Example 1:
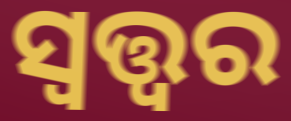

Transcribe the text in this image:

ସ୍ୱତ୍ତ୍ୱର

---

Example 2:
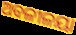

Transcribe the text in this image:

ଅବଳୀଳୟା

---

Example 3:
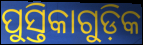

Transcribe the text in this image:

ପୁସ୍ତିକାଗୁଡ଼ିକ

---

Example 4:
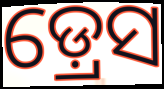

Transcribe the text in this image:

ଡ଼୍ରେସ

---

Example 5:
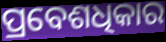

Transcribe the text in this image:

ପ୍ରବେଶଧିକାର